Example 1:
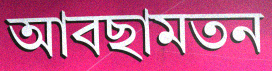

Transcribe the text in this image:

আবছামতন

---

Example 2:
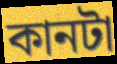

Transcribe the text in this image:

কানটা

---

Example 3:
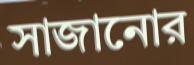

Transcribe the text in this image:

সাজানোর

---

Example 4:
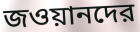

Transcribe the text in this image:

জওয়ানদের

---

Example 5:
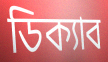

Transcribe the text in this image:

ডিক্যাব